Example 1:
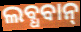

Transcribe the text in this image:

ଲବ୍ଧବାନ୍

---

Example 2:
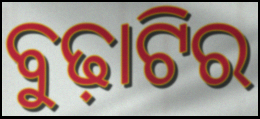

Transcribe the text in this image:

ବୁଢ଼ାଟିର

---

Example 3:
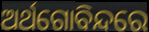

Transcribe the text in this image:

ଅର୍ଥଗୋବିନ୍ଦରେ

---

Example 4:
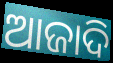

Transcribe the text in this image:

ଆଜାଦି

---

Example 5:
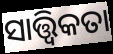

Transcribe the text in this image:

ସାତ୍ତ୍ଵିକତା